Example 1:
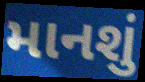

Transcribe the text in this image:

માનશું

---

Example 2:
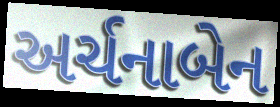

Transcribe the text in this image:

અર્ચનાબેન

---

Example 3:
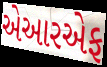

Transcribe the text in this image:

એઆરએફ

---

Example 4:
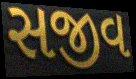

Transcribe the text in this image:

સજીવ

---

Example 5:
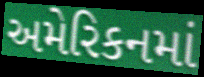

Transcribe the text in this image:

અમેરિકનમાં